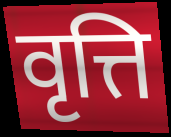
वृत्ति